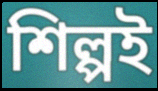
শিল্পই